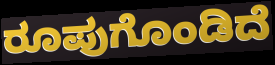
ರೂಪುಗೊಂಡಿದೆ